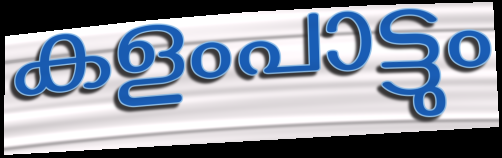
കളംപാട്ടും